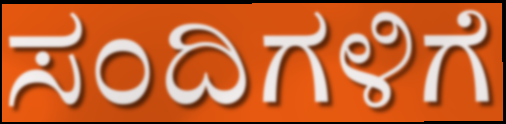
ಸಂದಿಗಳಿಗೆ